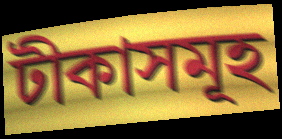
টীকাসমূহ